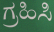
ಗ್ರಹಿಸಿ